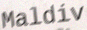
Maldiv